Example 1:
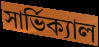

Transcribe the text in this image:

সার্ভিক্যাল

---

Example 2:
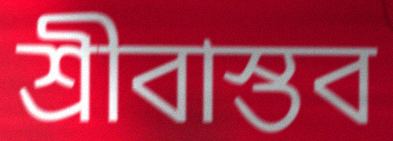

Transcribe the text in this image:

শ্রীবাস্তব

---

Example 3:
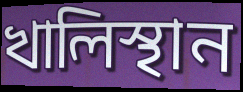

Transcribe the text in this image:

খালিস্থান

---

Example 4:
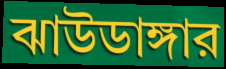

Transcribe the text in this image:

ঝাউডাঙ্গার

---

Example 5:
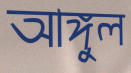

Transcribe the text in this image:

আঙ্গুল